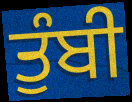
ਤੁੰਬੀ